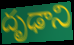
దృఢాని